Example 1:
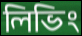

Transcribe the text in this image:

লিভিং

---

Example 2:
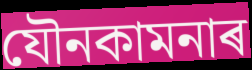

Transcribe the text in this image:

যৌনকামনাৰ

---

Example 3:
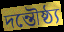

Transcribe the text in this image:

দন্তৌষ্ঠ্য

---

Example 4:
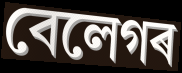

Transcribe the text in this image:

বেলেগৰ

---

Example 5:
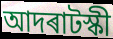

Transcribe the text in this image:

আদৰাটস্কী